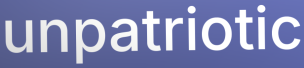
unpatriotic